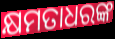
କ୍ଷମତାଧରଙ୍କ